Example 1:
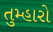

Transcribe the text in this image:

તુમ્હારો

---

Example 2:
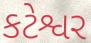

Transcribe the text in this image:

કટેશ્વર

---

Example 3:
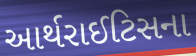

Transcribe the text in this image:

આર્થરાઈટિસના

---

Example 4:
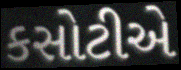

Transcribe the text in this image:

કસોટીએ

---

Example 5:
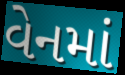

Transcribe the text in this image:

વેનમાં